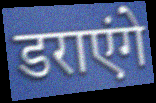
डराएंगे